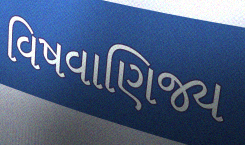
વિષવાણિજ્ય